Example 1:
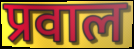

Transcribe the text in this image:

प्रवाल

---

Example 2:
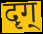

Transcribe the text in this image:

दृग्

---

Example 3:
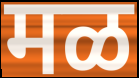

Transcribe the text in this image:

मळ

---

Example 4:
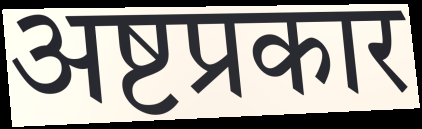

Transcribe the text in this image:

अष्टप्रकार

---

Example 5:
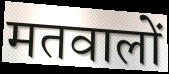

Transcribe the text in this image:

मतवालों